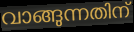
വാങ്ങുന്നതിന്